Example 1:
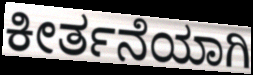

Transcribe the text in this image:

ಕೀರ್ತನೆಯಾಗಿ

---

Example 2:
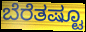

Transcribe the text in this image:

ಬೆರೆತಷ್ಟೂ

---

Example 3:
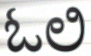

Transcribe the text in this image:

ಓಲಿ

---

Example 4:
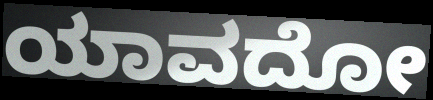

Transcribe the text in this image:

ಯಾವದೋ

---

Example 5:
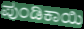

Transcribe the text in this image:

ಪುಂಡಿಕಾಯಿ